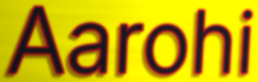
Aarohi